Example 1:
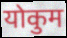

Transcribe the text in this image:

योकुम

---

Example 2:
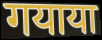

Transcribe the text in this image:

गयाया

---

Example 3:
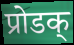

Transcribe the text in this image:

प्रोडक्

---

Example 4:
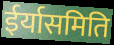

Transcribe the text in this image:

ईर्यासमिति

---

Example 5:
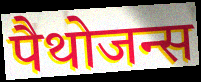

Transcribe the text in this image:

पैथोजन्स